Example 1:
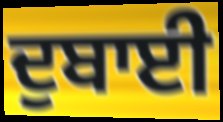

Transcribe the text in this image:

ਦੁਬਾਈ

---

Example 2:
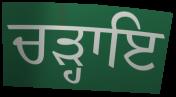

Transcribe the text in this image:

ਚੜ੍ਹਾਇ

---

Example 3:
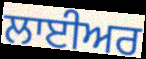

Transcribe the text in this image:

ਲਾਈਅਰ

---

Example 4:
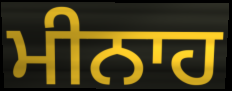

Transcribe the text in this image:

ਮੀਨਾਹ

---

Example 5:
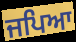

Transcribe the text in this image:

ਜਪਿਆ